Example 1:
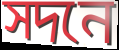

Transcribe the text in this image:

সদনে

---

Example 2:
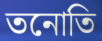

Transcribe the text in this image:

তনোতি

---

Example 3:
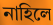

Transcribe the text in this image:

নাহিলে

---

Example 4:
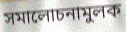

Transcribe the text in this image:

সমালোচনামুলক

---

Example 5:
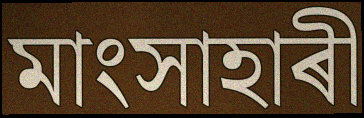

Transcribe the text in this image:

মাংসাহাৰী